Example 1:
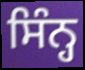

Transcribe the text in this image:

ਸਿੰਨ੍ਹ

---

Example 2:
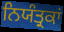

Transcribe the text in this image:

ਨਿਯੰਤ੍ਰਕਾਂ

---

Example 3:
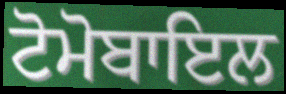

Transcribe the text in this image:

ਟੋਮੋਬਾਇਲ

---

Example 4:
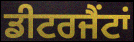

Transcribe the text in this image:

ਡੀਟਰਜੈਂਟਾਂ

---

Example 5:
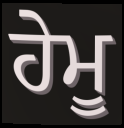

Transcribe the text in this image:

ਹੇਮੂ